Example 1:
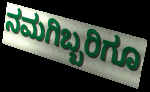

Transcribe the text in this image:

ನಮಗಿಬ್ಬರಿಗೂ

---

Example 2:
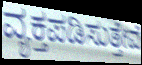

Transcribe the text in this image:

ವ್ಯಕ್ತಪಡಿಸುತ್ತೇವೆ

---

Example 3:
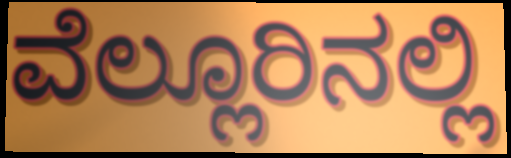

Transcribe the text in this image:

ವೆಲ್ಲೂರಿನಲ್ಲಿ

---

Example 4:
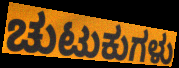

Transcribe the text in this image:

ಚುಟುಕುಗಳು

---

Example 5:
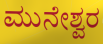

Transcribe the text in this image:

ಮುನೇಶ್ವರ